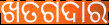
ଖତଗଦାର